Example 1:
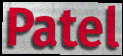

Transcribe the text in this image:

Patel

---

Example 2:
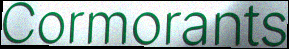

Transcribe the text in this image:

Cormorants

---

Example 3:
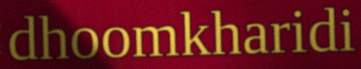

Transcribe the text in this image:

dhoomkharidi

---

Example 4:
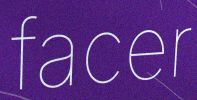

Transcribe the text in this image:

facer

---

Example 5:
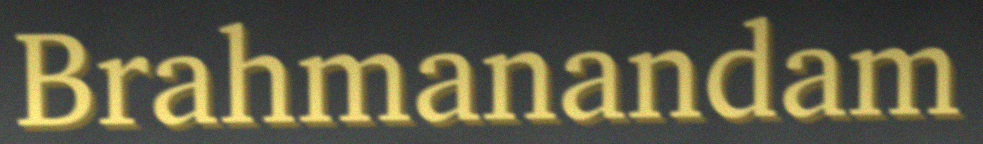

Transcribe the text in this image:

Brahmanandam